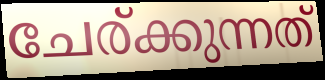
ചേര്ക്കുന്നത്